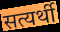
सत्यर्थी